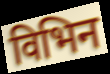
विभिन